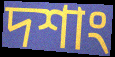
দশাং